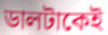
ডালটাকেই